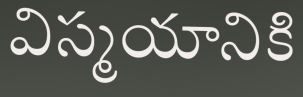
విస్మయానికి